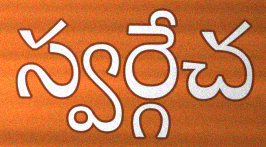
స్వర్గేచ